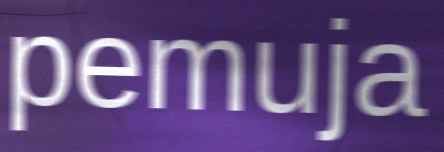
pemuja